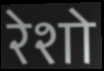
रेशो